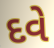
દવે